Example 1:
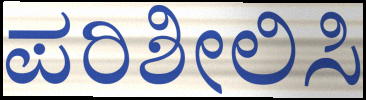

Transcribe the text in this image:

ಪರಿಶೀಲಿಸಿ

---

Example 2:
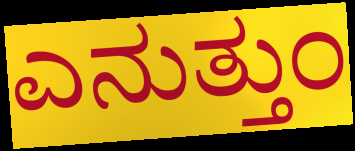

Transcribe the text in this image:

ಎನುತ್ತುಂ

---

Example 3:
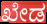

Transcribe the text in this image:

ಖೇಡ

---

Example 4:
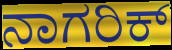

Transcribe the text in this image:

ನಾಗರಿಕ್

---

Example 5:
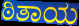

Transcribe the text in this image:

ಠಿತಾಯ